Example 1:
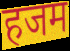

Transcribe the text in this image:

हजम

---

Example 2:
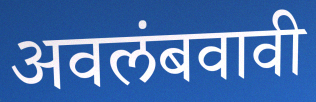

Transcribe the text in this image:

अवलंबवावी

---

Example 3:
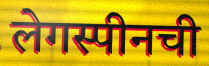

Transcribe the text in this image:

लेगस्पीनची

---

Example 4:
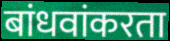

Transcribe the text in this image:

बांधवांकरता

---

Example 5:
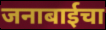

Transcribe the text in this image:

जनाबाईचा